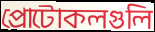
প্রোটোকলগুলি